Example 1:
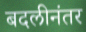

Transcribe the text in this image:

बदलीनंतर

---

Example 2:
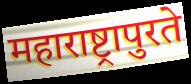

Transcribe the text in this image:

महाराष्ट्रापुरते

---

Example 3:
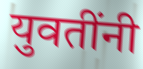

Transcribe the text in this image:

युवतींनी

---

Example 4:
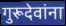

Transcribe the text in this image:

गुरूदेवांना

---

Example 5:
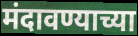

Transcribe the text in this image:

मंदावण्याच्या